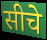
सीचे